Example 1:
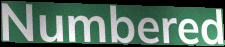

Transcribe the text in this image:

Numbered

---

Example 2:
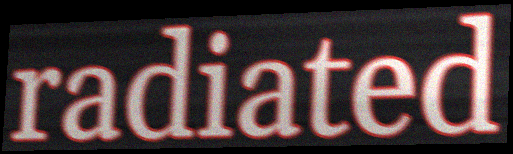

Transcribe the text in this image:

radiated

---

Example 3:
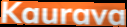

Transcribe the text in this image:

Kaurava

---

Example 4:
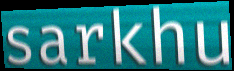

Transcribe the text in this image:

sarkhu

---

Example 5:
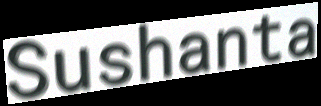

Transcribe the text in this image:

Sushanta